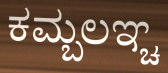
ಕಮ್ಬಲಞ್ಚ